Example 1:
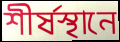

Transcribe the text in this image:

শীর্ষস্থানে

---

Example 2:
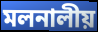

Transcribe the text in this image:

মলনালীয়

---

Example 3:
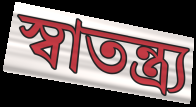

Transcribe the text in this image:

স্বাতন্ত্র্য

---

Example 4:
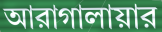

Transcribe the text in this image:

আরাগালায়ার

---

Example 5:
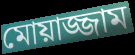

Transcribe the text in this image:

মোয়াজ্জাম